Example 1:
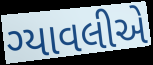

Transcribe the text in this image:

ગ્યાવલીએ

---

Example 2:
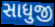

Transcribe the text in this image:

સાધુજી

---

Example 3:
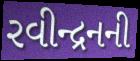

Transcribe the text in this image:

રવીન્દ્રનની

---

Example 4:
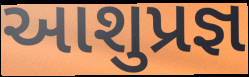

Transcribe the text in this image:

આશુપ્રજ્ઞ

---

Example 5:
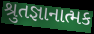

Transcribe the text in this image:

શ્રુતજ્ઞાનાત્મક